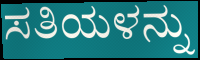
ಸತಿಯಳನ್ನು